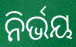
ନିର୍ଭୟ